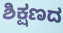
ಶಿಕ್ಷಣದ